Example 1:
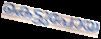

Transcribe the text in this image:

കെട്ടുപോയ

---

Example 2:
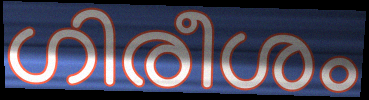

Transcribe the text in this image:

ഗിരീശം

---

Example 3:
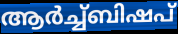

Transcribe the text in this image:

ആർച്ച്ബിഷപ്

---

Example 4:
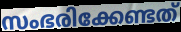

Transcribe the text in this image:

സംഭരിക്കേണ്ടത്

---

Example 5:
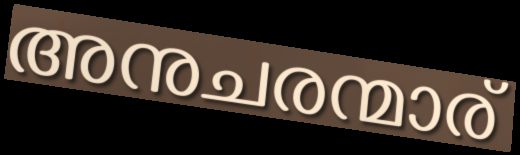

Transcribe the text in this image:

അനുചരന്മാര്